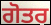
ਗੋਤਰ